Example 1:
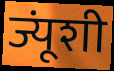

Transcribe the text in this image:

ज्यूंशी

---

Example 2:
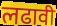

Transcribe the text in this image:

लढावी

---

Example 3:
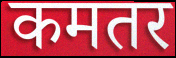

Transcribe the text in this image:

कमतर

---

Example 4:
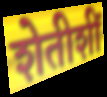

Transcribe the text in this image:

शेतीशीं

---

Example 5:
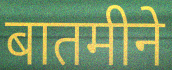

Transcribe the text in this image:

बातमीने